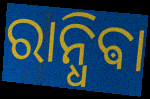
ରାନ୍ଧିଵା